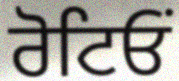
ਰੋਟਿਓਂ